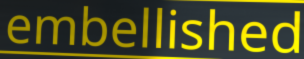
embellished